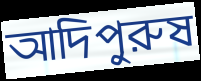
আদিপুৰুষ